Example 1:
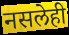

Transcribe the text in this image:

नसलेही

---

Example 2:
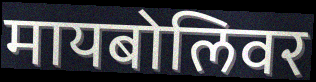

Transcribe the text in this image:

मायबोलिवर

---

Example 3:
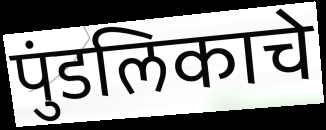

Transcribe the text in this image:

पुंडलिकाचे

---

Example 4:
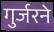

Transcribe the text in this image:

गुर्जरने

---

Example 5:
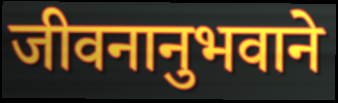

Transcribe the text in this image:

जीवनानुभवाने